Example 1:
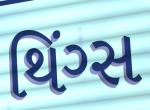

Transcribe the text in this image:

થિંગ્સ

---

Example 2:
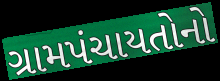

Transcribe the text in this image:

ગ્રામપંચાયતોનો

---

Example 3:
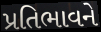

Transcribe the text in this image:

પ્રતિભાવને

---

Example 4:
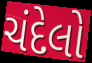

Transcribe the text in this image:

ચંદેલો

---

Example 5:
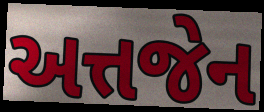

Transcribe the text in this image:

અત્તજેન